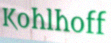
Kohlhoff